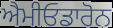
ਐਮੀਓਡਾਰੋਨ